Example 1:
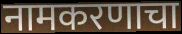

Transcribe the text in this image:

नामकरणाचा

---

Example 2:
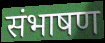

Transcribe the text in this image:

संभाषण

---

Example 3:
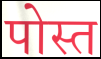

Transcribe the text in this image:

पोस्त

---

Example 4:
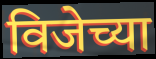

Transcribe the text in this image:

विजेच्या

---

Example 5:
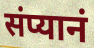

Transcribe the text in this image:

संप्यानं